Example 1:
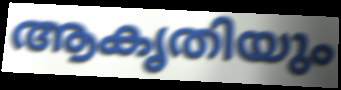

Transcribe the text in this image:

ആകൃതിയും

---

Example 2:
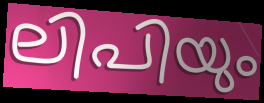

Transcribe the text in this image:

ലിപിയും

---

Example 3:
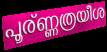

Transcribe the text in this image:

പൂര്ണ്ണത്രയീശ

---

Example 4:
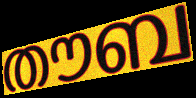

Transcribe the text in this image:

തൗബ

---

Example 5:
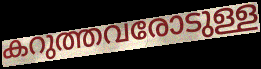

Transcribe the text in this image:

കറുത്തവരോടുള്ള